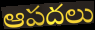
ఆపదలు